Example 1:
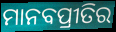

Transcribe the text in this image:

ମାନବପ୍ରୀତିର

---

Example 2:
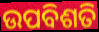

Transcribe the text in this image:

ଉପବିଶତି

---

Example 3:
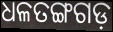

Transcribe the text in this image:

ଧଳତଙ୍ଗଗଡ଼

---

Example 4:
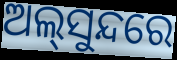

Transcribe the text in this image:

ଅଲ୍‌ସୁନ୍ଦରେ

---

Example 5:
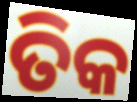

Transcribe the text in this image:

ତିକ